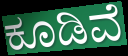
ಕೂಡಿವೆ